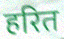
हरित